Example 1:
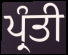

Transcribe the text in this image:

ਪ੍ਰੰਤੀ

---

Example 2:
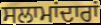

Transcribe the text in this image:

ਸਲਾਮਾਂਦਾਰਾਂ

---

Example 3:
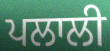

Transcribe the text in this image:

ਪਲਾਲੀ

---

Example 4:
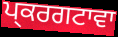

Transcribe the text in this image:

ਪ੍ਕਰਗਟਾਵਾ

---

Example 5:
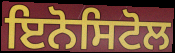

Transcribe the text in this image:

ਇਨੋਸਿਟੋਲ